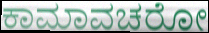
ಕಾಮಾವಚರೋ